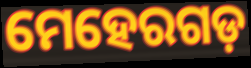
ମେହେରଗଡ଼